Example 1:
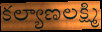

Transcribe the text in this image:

కల్యాణలక్ష్మి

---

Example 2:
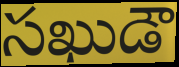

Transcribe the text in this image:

సఖుడౌ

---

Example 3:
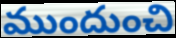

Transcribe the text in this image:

ముందుంచి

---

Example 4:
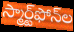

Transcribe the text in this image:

స్మార్ట్‌ఫోన్‌ల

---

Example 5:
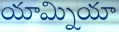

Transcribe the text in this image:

యామ్నియా